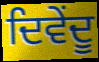
ਦਿਵੇਂਦੂ